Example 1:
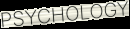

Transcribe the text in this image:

PSYCHOLOGY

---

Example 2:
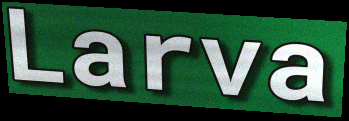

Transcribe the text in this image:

Larva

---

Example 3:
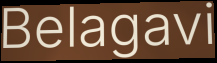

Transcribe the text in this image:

Belagavi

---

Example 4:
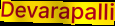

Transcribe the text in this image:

Devarapalli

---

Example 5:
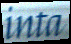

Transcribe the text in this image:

inta